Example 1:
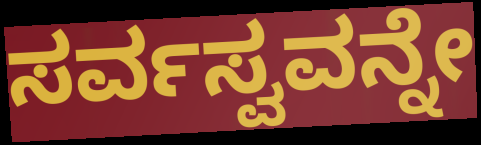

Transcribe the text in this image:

ಸರ್ವಸ್ವವನ್ನೇ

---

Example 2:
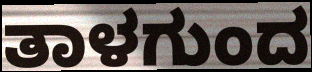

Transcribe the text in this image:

ತಾಳಗುಂದ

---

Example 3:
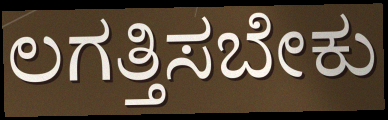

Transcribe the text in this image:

ಲಗತ್ತಿಸಬೇಕು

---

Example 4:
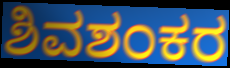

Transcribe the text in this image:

ಶಿವಶಂಕರ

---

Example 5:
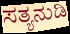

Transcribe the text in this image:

ಸತ್ಯನುಡಿ